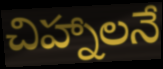
చిహ్నాలనే